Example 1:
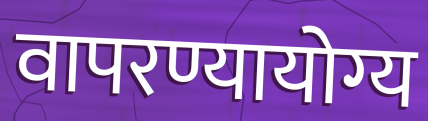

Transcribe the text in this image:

वापरण्यायोग्य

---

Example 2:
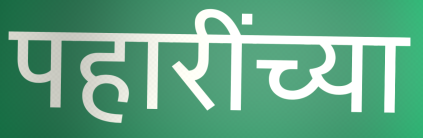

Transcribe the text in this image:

पहारींच्या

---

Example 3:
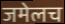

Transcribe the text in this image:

जमेलच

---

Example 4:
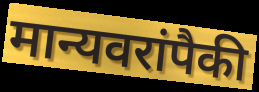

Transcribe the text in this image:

मान्यवरांपैकी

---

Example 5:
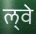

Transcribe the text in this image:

ल्वे